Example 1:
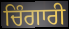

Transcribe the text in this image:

ਚਿੰਗਾਰੀ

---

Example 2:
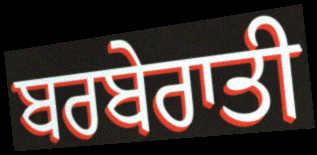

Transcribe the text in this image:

ਬਰਬੇਰਾਤੀ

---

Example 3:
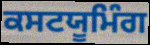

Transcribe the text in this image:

ਕਸਟਯੂਮਿੰਗ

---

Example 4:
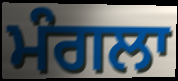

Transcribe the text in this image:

ਮੰਗਲਾ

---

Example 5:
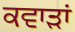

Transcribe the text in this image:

ਕਵਾੜਾਂ